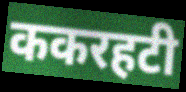
ककरहटी